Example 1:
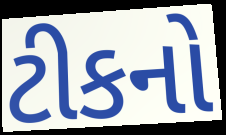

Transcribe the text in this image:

ટીકનો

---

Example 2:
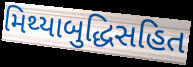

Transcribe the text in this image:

મિથ્યાબુદ્ધિસહિત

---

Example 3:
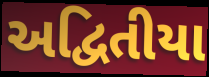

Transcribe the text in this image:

અદ્વિતીયા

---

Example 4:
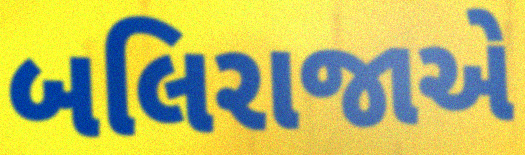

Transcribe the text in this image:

બલિરાજાએ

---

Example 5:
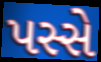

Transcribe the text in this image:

પસ્સે